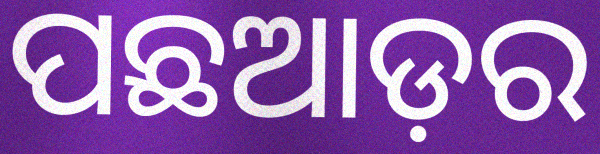
ପଛଆଡ଼ର